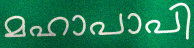
മഹാപാപി